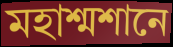
মহাশ্মশানে